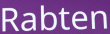
Rabten